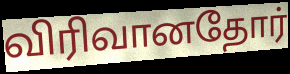
விரிவானதோர்